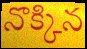
నొక్కిన